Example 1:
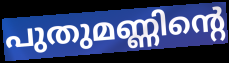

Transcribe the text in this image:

പുതുമണ്ണിന്റെ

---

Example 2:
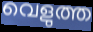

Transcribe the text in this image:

വെളുത്ത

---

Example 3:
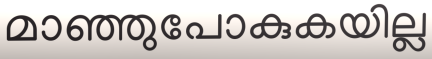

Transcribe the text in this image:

മാഞ്ഞുപോകുകയില്ല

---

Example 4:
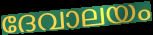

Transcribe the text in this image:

ദേവാലയം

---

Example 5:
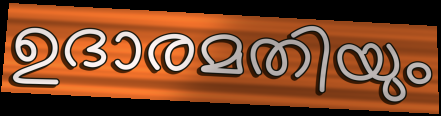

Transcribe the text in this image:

ഉദാരമതിയും